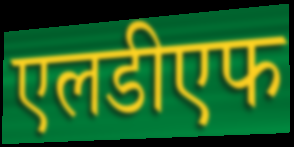
एलडीएफ